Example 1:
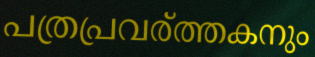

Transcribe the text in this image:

പത്രപ്രവര്ത്തകനും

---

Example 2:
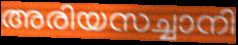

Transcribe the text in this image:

അരിയസച്ചാനി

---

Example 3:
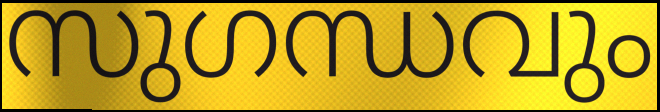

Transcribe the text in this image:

സുഗന്ധവും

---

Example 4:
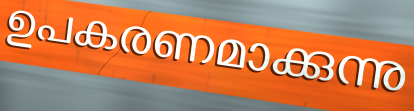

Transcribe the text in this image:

ഉപകരണമാക്കുന്നു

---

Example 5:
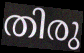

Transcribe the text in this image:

തിരു